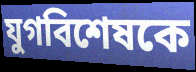
যুগবিশেষকে